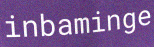
inbaminge